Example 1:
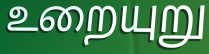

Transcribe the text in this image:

உறையுறு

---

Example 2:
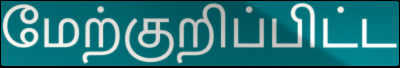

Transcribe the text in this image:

மேற்குறிப்பிட்ட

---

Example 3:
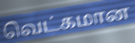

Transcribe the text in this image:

வெட்கமான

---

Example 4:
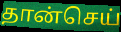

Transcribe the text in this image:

தான்செய்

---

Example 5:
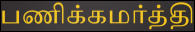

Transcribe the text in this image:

பணிக்கமர்த்தி